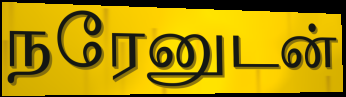
நரேனுடன்